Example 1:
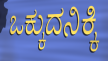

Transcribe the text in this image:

ಒಕ್ಕುದನಿಕ್ಕಿ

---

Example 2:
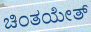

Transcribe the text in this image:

ಚಿಂತಯೇತ್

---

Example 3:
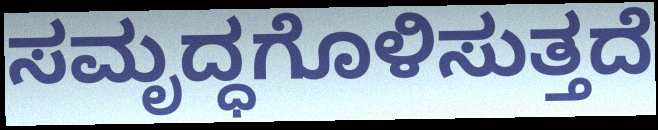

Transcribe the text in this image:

ಸಮೃದ್ಧಗೊಳಿಸುತ್ತದೆ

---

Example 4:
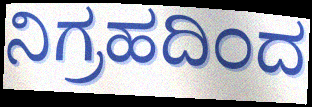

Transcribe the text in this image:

ನಿಗ್ರಹದಿಂದ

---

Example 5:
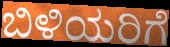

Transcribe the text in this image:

ಬಿಳಿಯರಿಗೆ